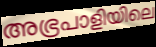
അഭ്രപാളിയിലെ